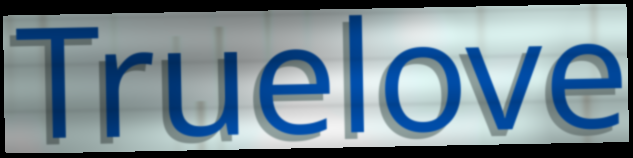
Truelove